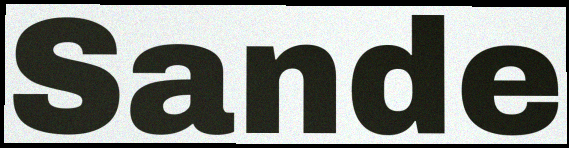
Sande